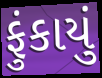
ફુંકાયું